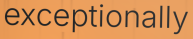
exceptionally